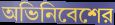
অভিনিবেশের